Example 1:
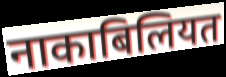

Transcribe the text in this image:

नाकाबिलियत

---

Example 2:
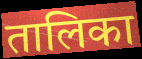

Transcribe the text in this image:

तालिका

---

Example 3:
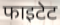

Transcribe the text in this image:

फाइटेट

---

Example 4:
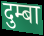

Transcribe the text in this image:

दुम्बा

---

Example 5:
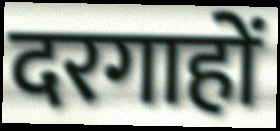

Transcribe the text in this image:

दरगाहों